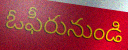
ఓఫీరునుండి